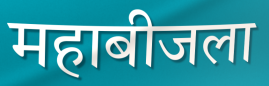
महाबीजला